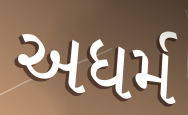
અધર્મ